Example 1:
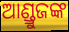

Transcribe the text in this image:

ଆଣ୍ଡ୍ରୁଜଙ୍କ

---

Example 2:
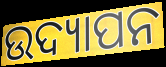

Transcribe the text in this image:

ଉଦ୍ୟାପନ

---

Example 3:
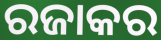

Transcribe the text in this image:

ରଜାକର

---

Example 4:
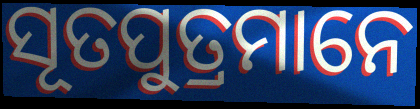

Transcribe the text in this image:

ସୂତପୁତ୍ରମାନେ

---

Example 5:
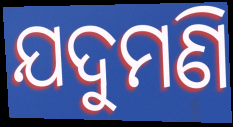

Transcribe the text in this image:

ଯଦୁମଣି